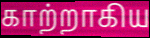
காற்றாகிய